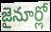
జైనూర్లో